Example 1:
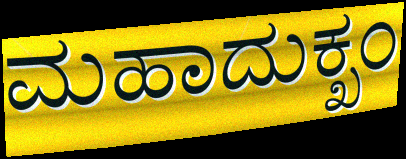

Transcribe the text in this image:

ಮಹಾದುಕ್ಖಂ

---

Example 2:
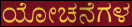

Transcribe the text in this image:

ಯೋಚನೆಗಳ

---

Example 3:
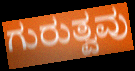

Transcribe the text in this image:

ಗುರುತ್ವವು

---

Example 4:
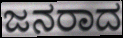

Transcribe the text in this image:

ಜನರಾದ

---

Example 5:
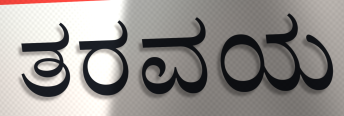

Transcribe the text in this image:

ತರವಯ